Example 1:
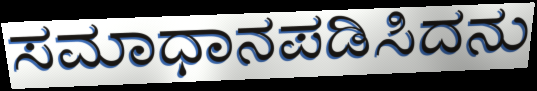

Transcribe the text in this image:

ಸಮಾಧಾನಪಡಿಸಿದನು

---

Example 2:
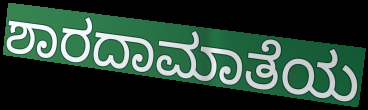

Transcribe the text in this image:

ಶಾರದಾಮಾತೆಯ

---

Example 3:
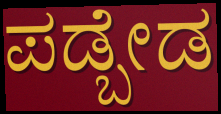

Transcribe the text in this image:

ಪಡ್ಬೇಡ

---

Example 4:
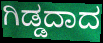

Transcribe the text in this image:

ಗಿಡ್ಡದಾದ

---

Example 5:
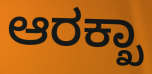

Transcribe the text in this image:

ಆರಕ್ಖಾ